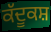
ਕੱਦੂਕਸ਼